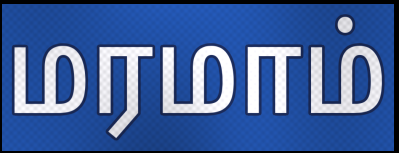
மரமாம்